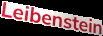
Leibenstein